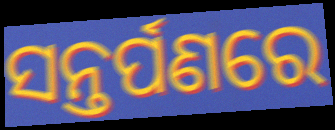
ସନ୍ତର୍ପଣରେ